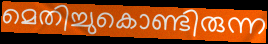
മെതിച്ചുകൊണ്ടിരുന്ന